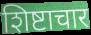
शिष्टाचार